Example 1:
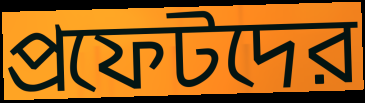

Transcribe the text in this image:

প্রফেটদের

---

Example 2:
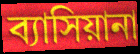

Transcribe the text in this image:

ব্যাসিয়ানা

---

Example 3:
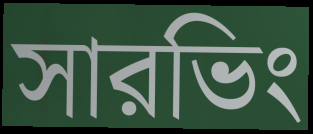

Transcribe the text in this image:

সারভিং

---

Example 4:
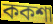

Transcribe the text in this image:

ককশা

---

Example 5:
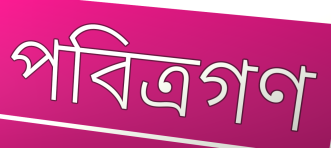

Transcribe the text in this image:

পবিত্রগণ